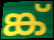
ങ്ക്